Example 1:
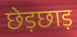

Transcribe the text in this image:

छेड़छाड़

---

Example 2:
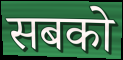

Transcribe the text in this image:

सबको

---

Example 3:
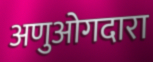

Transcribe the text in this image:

अणुओगदारा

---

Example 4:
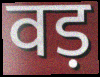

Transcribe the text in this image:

वड़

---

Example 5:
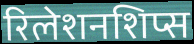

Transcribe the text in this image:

रिलेशनशिप्स